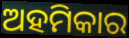
ଅହମିକାର